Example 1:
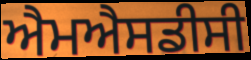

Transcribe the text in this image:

ਐਮਐਸਡੀਸੀ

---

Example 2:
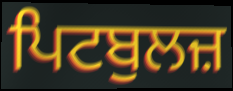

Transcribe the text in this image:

ਪਿਟਬੁਲਜ਼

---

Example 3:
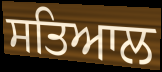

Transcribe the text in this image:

ਸਤਿਆਲ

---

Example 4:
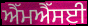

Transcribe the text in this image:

ਐੱਮਐੱਸਈ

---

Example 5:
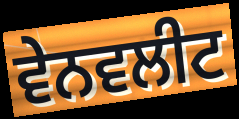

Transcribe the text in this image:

ਵੇਨਵਲੀਟ